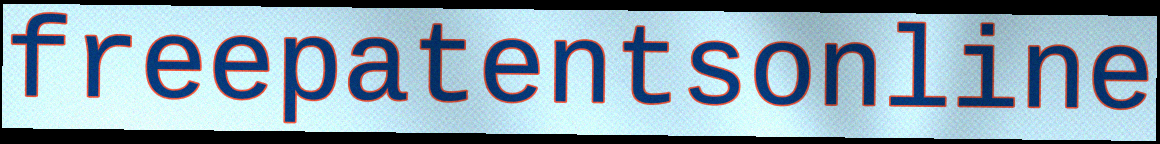
freepatentsonline